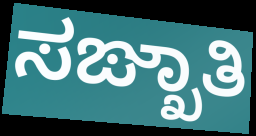
ಸಙ್ಖಾತಿ